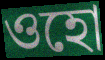
ওহো